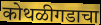
कोथळीगडाचा